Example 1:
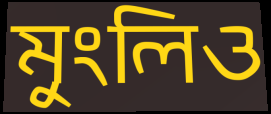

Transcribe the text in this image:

মুংলিও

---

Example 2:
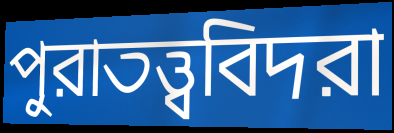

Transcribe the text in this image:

পুরাতত্ত্ববিদরা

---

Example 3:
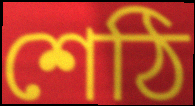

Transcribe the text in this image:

শেঠি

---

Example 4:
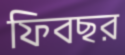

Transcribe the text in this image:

ফিবছর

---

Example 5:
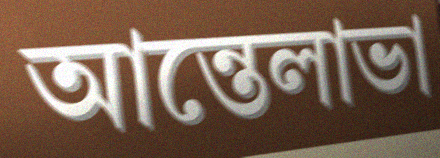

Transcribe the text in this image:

আন্তেলাভা